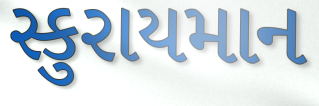
સ્કુરાયમાન